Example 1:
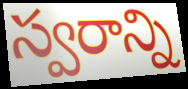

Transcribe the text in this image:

స్వరాన్ని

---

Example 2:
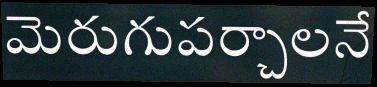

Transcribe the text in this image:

మెరుగుపర్చాలనే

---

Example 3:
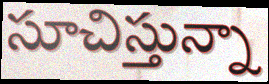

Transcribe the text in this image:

సూచిస్తున్నా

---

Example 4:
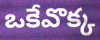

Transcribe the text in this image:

ఒకేవొక్క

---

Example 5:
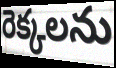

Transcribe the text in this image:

రెక్కలను